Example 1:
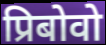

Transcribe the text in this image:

प्रिबोवो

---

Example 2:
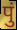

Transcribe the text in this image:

पुं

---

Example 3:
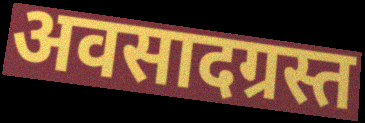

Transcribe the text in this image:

अवसादग्रस्त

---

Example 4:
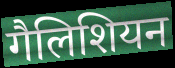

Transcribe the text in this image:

गैलिशियन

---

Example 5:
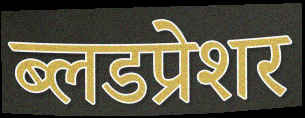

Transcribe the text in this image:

ब्लडप्रेशर